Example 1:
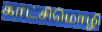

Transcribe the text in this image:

காட்சிமொழி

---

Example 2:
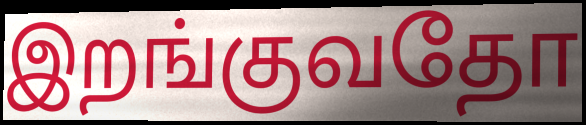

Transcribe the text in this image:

இறங்குவதோ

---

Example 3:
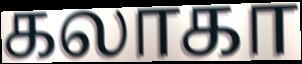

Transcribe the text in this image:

கலாகா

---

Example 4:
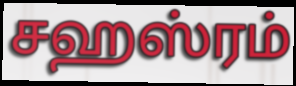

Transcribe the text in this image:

சஹஸ்ரம்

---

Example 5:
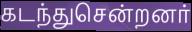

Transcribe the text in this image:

கடந்துசென்றனர்